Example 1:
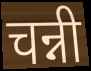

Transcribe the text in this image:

चन्नी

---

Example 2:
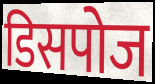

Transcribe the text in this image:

डिसपोज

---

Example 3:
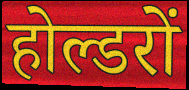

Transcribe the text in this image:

होल्डरों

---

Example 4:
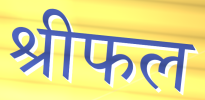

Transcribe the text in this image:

श्रीफल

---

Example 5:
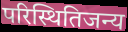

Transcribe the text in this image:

परिस्थितिजन्य